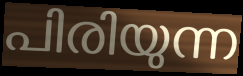
പിരിയുന്ന